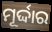
ମୂର୍ଦ୍ଦାର